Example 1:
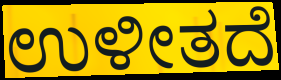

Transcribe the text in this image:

ಉಳೀತದೆ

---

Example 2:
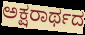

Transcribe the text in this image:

ಅಕ್ಷರಾರ್ಥದ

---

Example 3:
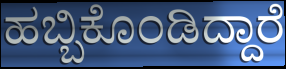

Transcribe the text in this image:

ಹಬ್ಬಿಕೊಂಡಿದ್ದಾರೆ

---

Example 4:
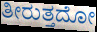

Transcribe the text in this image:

ತೀರುತ್ತದೋ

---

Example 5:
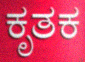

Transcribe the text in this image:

ಕೃತಕ